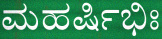
ಮಹರ್ಷಿಭಿಃ